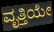
ವೃತ್ತಿಯೇ